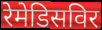
रेमेडिसविर